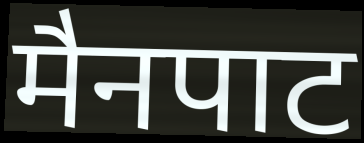
मैनपाट